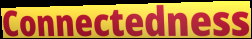
Connectedness